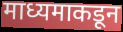
माध्यमाकडून